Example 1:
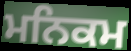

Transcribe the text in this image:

ਮਨਿਕਮ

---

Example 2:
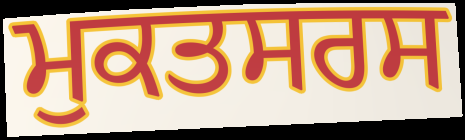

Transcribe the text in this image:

ਮੁਕਤਸਰਸ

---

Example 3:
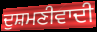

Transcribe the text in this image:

ਦੁਸ਼ਮਣੀਵਾਦੀ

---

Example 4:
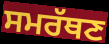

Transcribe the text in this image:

ਸਮਰੱਥਣ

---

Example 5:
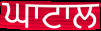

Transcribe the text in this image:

ਘਾਟਾਲ